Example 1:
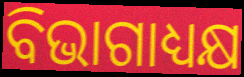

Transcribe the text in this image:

ବିଭାଗାଧ୍ୟକ୍ଷ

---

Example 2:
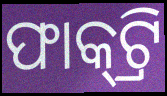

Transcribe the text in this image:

ଫାକ୍‍ଟ୍ରି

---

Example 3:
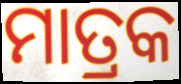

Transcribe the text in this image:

ମାତ୍ରକ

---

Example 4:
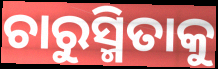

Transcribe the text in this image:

ଚାରୁସ୍ମିତାକୁ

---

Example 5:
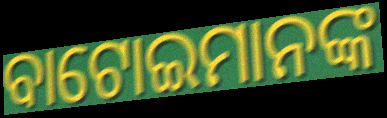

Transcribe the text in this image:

ବାଟୋଇମାନଙ୍କ